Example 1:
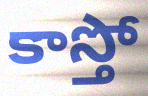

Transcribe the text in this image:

కాస్తో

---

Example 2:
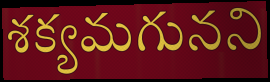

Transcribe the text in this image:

శక్యమగునని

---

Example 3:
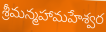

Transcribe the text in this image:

శ్రీమన్మహామహేశ్వర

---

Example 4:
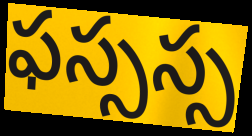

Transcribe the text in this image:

ఫస్సస్స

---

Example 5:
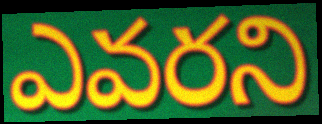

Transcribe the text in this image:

ఎవరని